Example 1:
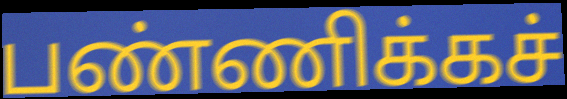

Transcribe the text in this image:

பண்ணிக்கச்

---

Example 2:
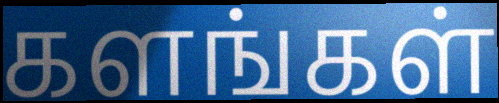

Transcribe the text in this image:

களங்கள்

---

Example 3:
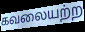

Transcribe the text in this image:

கவலையற்ற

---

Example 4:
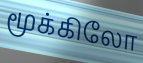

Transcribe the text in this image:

மூக்கிலோ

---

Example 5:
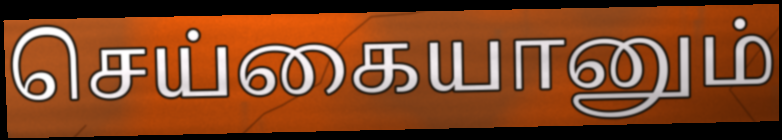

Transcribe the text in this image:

செய்கையானும்